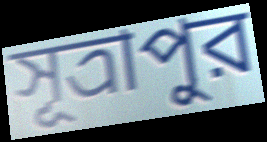
সূত্রাপুর